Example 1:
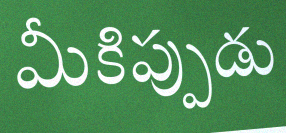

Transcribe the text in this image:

మీకిప్పుడు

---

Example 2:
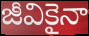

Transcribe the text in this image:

జీవికైనా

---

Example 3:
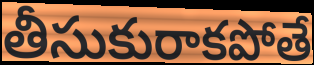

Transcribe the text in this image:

తీసుకురాకపోతే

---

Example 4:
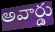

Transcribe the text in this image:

అవార్డు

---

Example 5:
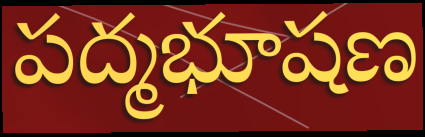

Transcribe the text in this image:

పద్మభూషణ